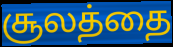
சூலத்தை